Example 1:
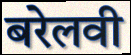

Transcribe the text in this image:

बरेलवी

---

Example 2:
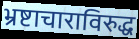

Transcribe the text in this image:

भ्रष्टाचाराविरुद्ध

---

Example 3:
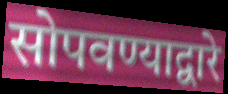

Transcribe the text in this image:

सोपवण्याद्वारे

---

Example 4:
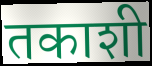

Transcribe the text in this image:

तकाशी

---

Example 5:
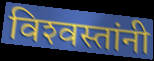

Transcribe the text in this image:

विश्वस्तांनी